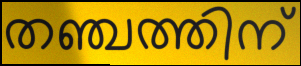
തഞ്ചത്തിന്